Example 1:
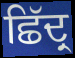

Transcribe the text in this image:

ਛਿੱਦ੍ਰ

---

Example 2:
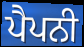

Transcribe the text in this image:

ਪੈਪਨੀ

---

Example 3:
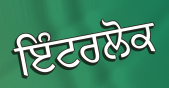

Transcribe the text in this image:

ਇੰਟਰਲੋਕ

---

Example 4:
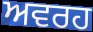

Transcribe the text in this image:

ਅਵਰਹ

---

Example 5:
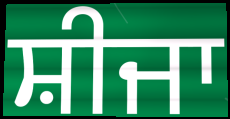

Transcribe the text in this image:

ਸ਼ੀਜਾ